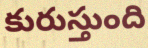
కురుస్తుంది